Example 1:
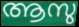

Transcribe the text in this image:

ആസു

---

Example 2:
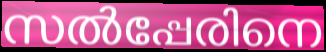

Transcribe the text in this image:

സൽപ്പേരിനെ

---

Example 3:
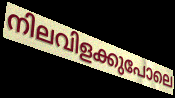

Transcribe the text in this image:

നിലവിളക്കുപോലെ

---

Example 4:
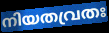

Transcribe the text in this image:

നിയതവ്രതഃ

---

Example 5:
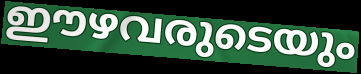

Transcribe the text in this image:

ഈഴവരുടെയും